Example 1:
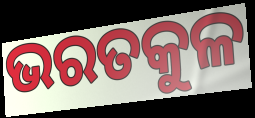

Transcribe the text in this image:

ଭରତକୁଳ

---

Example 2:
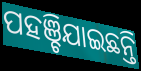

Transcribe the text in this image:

ପହଞ୍ଚିଯାଇଛନ୍ତି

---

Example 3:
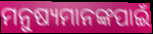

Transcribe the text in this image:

ମନୁଷ୍ୟମାନଙ୍କପାଇଁ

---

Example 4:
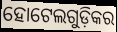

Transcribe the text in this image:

ହୋଟେଲଗୁଡ଼ିକର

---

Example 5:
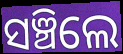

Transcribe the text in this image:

ସଞ୍ଚିଲେ